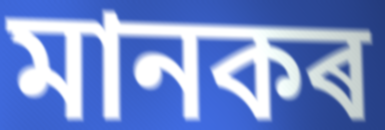
মানকৰ